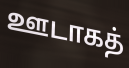
ஊடாகத்